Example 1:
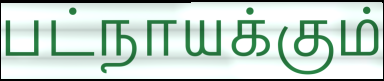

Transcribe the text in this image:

பட்நாயக்கும்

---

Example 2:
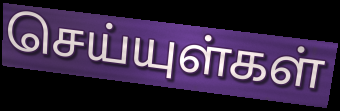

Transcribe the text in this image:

செய்யுள்கள்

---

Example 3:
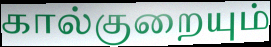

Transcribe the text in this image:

கால்குறையும்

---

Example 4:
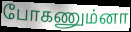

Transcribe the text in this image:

போகணும்னா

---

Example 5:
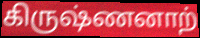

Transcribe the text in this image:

கிருஷ்ணனாற்